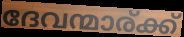
ദേവന്മാര്ക്ക്